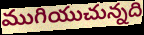
ముగియుచున్నది